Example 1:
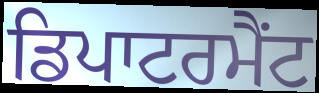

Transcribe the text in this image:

ਡਿਪਾਟਰਮੈਂਟ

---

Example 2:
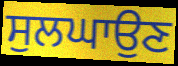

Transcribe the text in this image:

ਸੁਲਘਾਉਣ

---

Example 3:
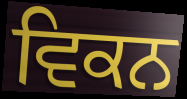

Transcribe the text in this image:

ਵਿਕਨ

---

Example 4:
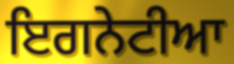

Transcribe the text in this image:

ਇਗਨੇਟੀਆ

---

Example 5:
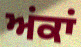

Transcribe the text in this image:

ਅਂਕਾਂ